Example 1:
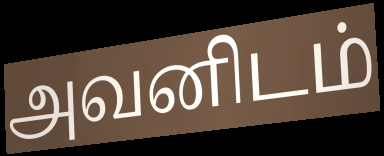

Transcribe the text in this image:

அவனிடம்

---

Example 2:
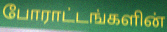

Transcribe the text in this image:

போராட்டங்களின்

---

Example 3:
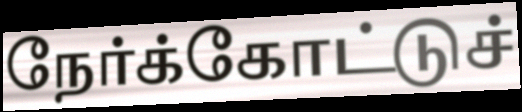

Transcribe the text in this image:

நேர்க்கோட்டுச்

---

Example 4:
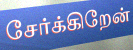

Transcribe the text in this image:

சேர்க்கிறேன்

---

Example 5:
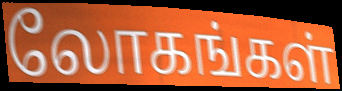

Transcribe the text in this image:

லோகங்கள்